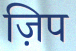
ज़िप